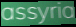
assyria